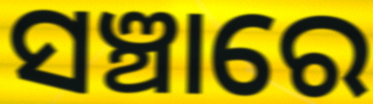
ସଞ୍ଚାରେ